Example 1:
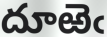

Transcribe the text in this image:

దూఱెఁ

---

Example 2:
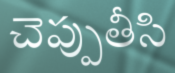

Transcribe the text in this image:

చెప్పుతీసి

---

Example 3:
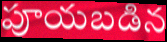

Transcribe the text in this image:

పూయబడిన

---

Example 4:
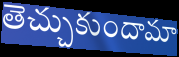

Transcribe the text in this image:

తెచ్చుకుందామా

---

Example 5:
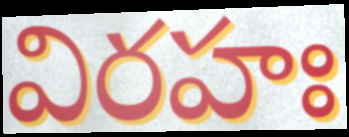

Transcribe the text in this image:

విరహః